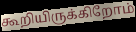
கூறியிருக்கிறோம்